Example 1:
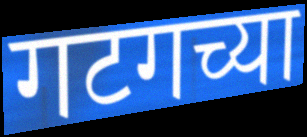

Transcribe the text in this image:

गटगच्या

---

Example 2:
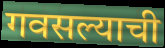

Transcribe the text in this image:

गवसल्याची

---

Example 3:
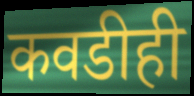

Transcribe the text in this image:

कवडीही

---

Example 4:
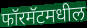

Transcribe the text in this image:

फॉरमॅटमधील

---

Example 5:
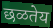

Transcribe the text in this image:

छळतेय